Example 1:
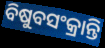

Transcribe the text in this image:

ବିଷୁବସଂକ୍ରାନ୍ତି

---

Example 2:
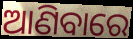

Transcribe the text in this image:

ଆଣିବାରେ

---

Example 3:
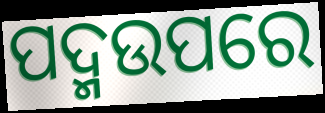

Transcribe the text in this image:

ପଦ୍ମଉପରେ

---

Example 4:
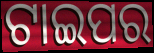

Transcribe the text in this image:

ଟାଇପର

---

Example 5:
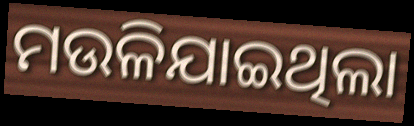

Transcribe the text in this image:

ମଉଳିଯାଇଥିଲା